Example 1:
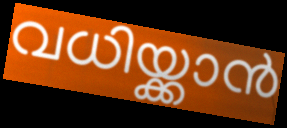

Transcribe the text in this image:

വധിയ്ക്കാൻ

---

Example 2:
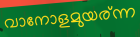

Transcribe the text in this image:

വാനോളമുയര്ന്ന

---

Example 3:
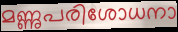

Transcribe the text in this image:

മണ്ണുപരിശോധനാ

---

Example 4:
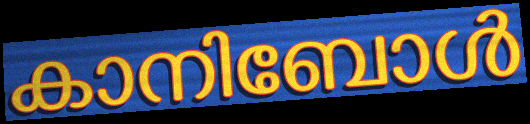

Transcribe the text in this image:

കാനിബോൾ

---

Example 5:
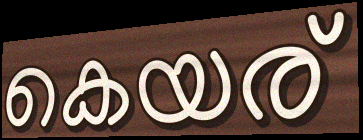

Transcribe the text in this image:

കെയര്